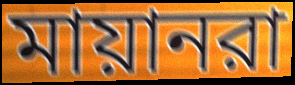
মায়ানরা